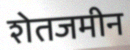
शेतजमीन